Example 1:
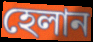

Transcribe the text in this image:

হেলান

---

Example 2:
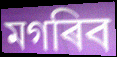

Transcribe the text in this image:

মগৰিব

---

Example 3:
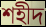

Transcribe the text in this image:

শহীদ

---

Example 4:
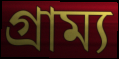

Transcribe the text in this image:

গ্ৰাম্য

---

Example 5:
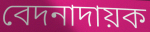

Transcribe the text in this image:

বেদনাদায়ক